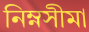
নিম্নসীমা